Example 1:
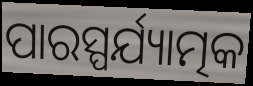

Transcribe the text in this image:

ପାରସ୍ପର୍ଯ୍ୟାତ୍ମକ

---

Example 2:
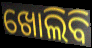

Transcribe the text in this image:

ଖୋଲିବି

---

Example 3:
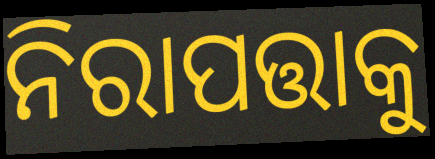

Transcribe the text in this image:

ନିରାପତ୍ତାକୁ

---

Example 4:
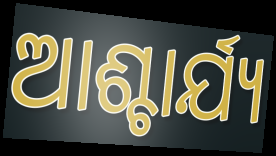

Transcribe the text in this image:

ଆଶ୍ଚାର୍ଯ୍ୟ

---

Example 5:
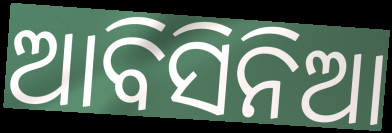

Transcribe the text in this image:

ଆବିସିନିଆ